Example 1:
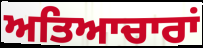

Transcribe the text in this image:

ਅਤਿਆਚਾਰਾਂ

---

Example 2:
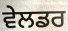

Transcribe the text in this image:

ਵੇਲਡਰ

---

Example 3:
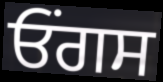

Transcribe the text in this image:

ਓਂਗਸ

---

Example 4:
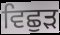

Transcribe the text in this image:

ਵਿਛੁੜ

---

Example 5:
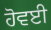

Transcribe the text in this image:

ਹੋਵਈ